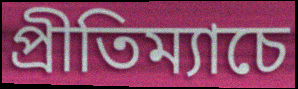
প্রীতিম্যাচে